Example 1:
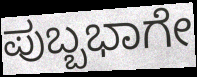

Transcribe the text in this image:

ಪುಬ್ಬಭಾಗೇ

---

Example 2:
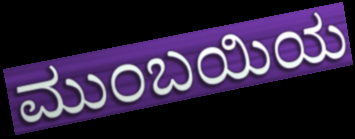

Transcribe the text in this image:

ಮುಂಬಯಿಯ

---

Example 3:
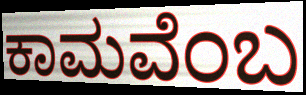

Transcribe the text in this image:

ಕಾಮವೆಂಬ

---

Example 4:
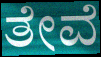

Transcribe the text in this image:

ತೇವೆ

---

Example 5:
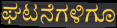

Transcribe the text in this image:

ಘಟನೆಗಳಿಗೂ